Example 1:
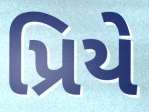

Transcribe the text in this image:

પ્રિયે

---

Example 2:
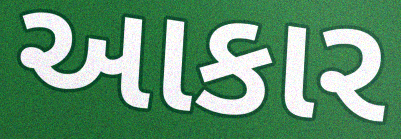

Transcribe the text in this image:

આકાર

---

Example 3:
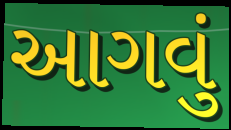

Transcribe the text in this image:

આગવું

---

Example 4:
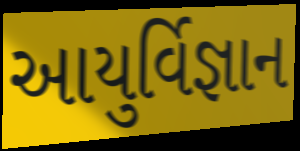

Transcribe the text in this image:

આયુર્વિજ્ઞાન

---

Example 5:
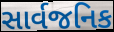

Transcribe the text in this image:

સાર્વજનિક